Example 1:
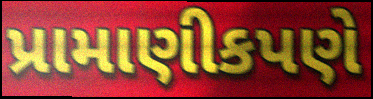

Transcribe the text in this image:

પ્રામાણીકપણે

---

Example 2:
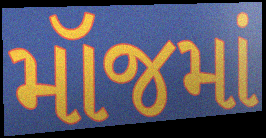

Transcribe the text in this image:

મૉજમાં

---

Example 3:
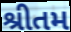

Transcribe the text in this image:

શ્રીતમ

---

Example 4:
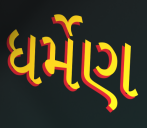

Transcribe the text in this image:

ધર્મેણ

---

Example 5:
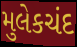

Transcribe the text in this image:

મુલેકચંદ